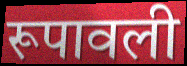
रूपावली